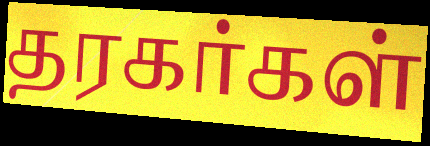
தரகர்கள்